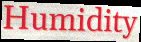
Humidity